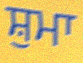
ਸ਼ੁਮਾ